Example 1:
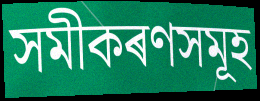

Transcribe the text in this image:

সমীকৰণসমূহ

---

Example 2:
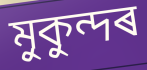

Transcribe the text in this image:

মুকুন্দৰ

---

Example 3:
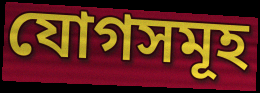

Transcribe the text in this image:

যোগসমূহ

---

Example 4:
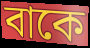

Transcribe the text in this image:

বাকে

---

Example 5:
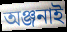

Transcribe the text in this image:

অঞ্জনাই